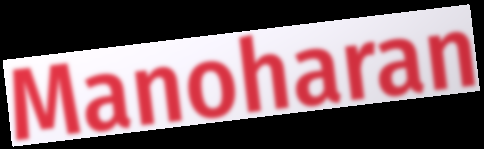
Manoharan